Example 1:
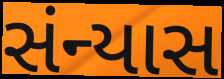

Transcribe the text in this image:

સંન્યાસ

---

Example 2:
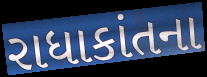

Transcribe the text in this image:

રાધાકાંતના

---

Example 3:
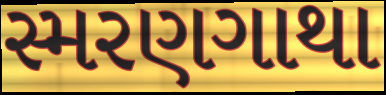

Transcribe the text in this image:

સ્મરણગાથા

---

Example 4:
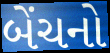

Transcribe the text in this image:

બેંચનો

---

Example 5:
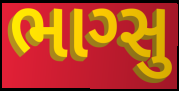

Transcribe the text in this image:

ભાગ્સુ